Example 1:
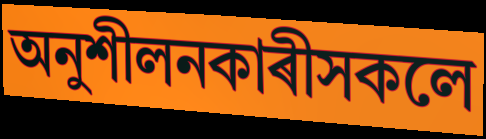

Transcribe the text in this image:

অনুশীলনকাৰীসকলে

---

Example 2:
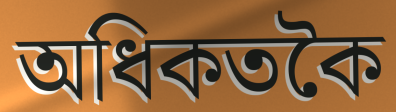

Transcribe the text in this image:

অধিকতকৈ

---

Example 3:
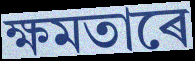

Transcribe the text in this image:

ক্ষমতাৰে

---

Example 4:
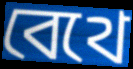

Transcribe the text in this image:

বেথে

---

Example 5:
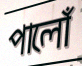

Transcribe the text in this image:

পালোঁ